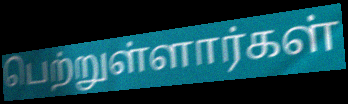
பெற்றுள்ளார்கள்